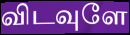
விடவுளே